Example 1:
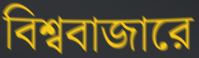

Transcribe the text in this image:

বিশ্ববাজারে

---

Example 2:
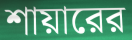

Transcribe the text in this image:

শায়ারের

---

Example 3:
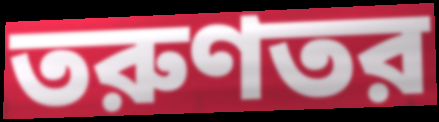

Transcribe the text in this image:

তরুণতর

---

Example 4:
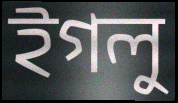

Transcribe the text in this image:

ইগলু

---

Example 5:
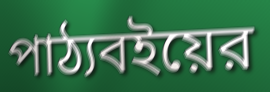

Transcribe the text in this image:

পাঠ্যবইয়ের